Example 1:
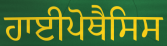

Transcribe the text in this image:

ਹਾਈਪੋਥੈਸਿਸ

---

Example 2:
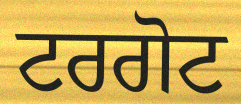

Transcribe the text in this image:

ਟਰਗੋਟ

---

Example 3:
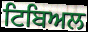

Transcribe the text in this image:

ਟਿਬਿਅਲ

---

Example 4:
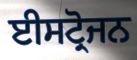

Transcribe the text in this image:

ਈਸਟ੍ਰੋਜਨ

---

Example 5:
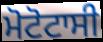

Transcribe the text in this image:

ਮੋਟੋਟਾਸੀ